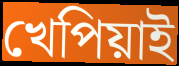
খেপিয়াই